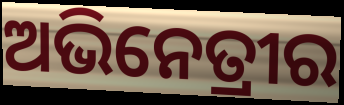
ଅଭିନେତ୍ରୀର